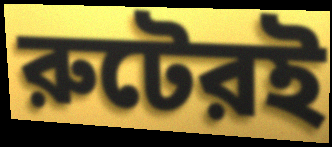
রুটেরই